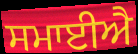
ਸਮਾਈਐ